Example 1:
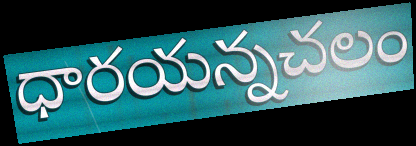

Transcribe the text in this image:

ధారయన్నచలం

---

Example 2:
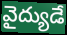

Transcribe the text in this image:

వైద్యుడే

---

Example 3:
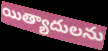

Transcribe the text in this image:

యిత్యాదులను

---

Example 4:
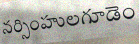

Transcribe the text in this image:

నర్సింహులగూడెం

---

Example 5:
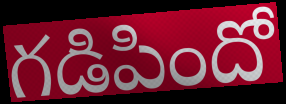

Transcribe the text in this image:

గడిపిందో